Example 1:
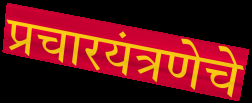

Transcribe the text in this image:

प्रचारयंत्रणेचे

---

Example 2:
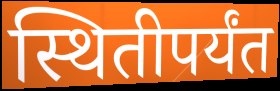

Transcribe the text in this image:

स्थितीपर्यंत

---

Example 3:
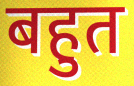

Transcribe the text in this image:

बहुत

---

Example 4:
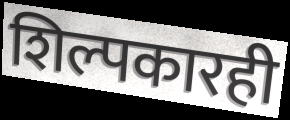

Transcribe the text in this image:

शिल्पकारही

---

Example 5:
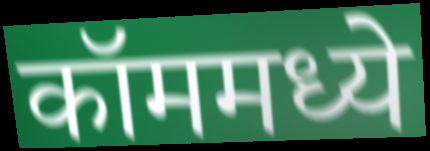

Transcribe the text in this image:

कॉममध्ये